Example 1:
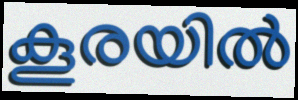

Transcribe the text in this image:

കൂരയിൽ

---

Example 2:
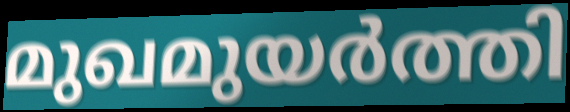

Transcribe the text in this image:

മുഖമുയർത്തി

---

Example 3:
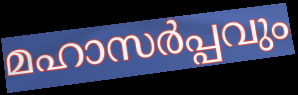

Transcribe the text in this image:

മഹാസർപ്പവും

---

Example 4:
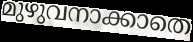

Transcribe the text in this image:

മുഴുവനാക്കാതെ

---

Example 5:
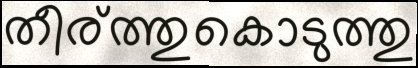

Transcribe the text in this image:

തീര്ത്തുകൊടുത്തു